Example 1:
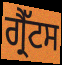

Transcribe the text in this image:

ਗ੍ਰੈੱਟਸ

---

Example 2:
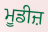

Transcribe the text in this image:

ਮੂਡੀਜ਼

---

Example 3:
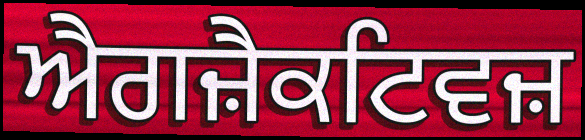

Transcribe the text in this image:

ਐਗਜ਼ੈਕਟਿਵਜ਼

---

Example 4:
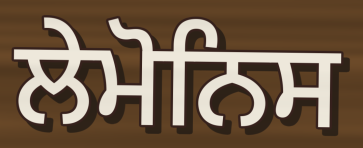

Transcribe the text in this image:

ਲੇਮੋਨਿਸ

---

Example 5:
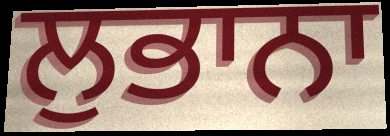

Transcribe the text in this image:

ਲੁਭਾਨਾ